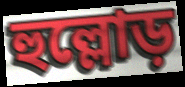
হুল্লোড়